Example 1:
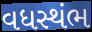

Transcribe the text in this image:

વધસ્થંભ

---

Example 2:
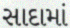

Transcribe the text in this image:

સાદામાં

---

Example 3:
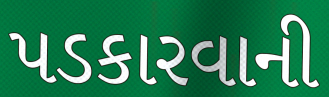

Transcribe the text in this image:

પડકારવાની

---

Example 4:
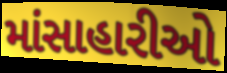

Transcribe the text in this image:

માંસાહારીઓ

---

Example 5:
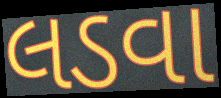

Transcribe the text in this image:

લડવા